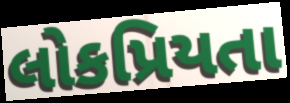
લોકપ્રિયતા